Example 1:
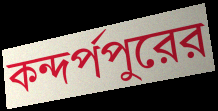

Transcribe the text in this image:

কন্দর্পপুরের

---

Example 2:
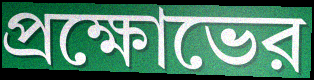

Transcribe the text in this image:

প্রক্ষোভের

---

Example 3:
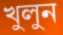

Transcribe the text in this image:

খুলুন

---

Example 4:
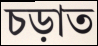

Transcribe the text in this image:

চড়াত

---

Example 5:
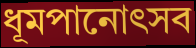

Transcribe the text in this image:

ধূমপানোৎসব